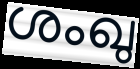
ശംഖു